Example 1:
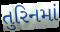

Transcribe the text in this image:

તુરિનમાં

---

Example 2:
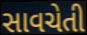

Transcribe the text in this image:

સાવચેતી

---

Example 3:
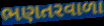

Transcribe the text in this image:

ભણતરવાળા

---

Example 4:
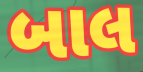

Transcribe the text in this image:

બાલ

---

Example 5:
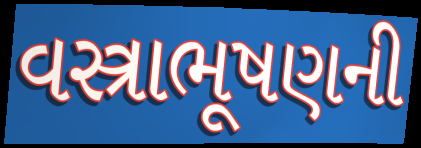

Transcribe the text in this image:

વસ્ત્રાભૂષણની